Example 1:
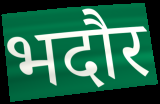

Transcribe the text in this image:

भदौर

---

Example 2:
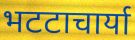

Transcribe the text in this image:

भटटाचार्या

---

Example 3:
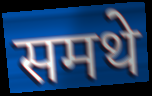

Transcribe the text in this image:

समथे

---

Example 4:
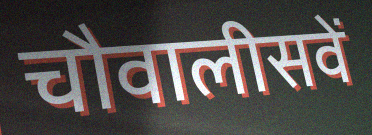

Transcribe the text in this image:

चौवालीसवें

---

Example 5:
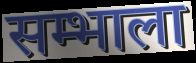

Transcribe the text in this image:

सम्भाला